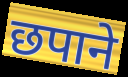
छपाने